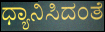
ಧ್ಯಾನಿಸಿದಂತೆ